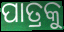
ପାତ୍ରକୁ